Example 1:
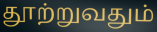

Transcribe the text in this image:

தூற்றுவதும்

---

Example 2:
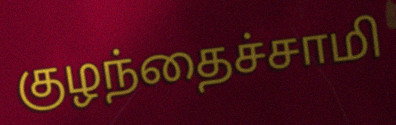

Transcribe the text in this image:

குழந்தைச்சாமி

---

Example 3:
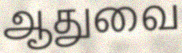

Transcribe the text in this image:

ஆதுவை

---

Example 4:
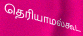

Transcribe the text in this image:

தெரியாமல்கூட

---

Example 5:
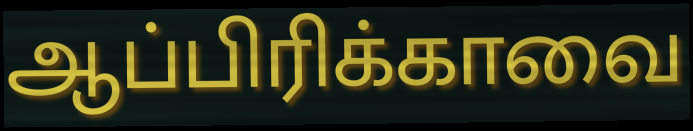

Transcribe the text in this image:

ஆப்பிரிக்காவை